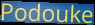
Podouke